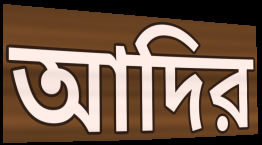
আদির